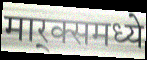
मार्क्समध्ये